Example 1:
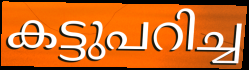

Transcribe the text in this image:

കട്ടുപറിച്ച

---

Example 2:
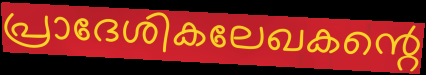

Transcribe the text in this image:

പ്രാദേശികലേഖകന്റെ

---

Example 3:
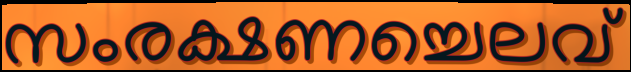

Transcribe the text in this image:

സംരക്ഷണച്ചെലവ്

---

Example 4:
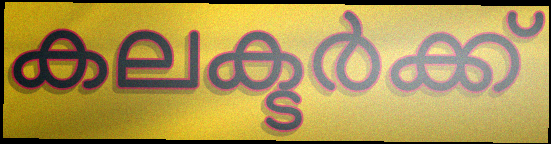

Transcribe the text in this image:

കലക്ടർക്ക്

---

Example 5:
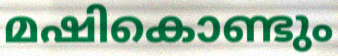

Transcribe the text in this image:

മഷികൊണ്ടും